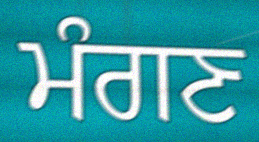
ਮੰਗਣ